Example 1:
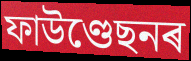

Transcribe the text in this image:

ফাউণ্ডেছনৰ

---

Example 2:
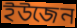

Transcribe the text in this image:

ইউজেন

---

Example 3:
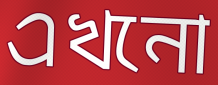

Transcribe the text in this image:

এখনো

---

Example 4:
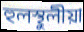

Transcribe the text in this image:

হুলস্থুলীয়া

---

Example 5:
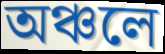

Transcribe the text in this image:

অঞ্চলে